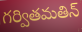
గర్వితమతిన్